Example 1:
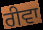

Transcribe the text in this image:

ਰੀਵਾ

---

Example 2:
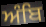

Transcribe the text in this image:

ਅੰਬਿ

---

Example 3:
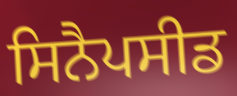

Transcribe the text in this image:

ਸਿਨੈਪਸੀਡ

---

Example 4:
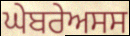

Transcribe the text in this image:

ਘੇਬਰੇਅਸਸ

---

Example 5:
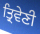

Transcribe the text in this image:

ਤ੍ਰਿਵੇਣੀ